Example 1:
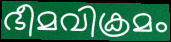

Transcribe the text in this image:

ഭീമവിക്രമം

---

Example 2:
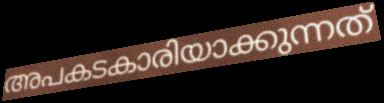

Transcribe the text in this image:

അപകടകാരിയാക്കുന്നത്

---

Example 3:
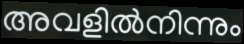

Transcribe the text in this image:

അവളിൽനിന്നും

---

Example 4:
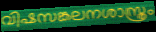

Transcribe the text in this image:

വിഷസങ്കലനശാസ്ത്രം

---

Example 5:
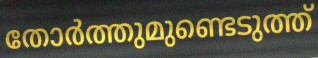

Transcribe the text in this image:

തോർത്തുമുണ്ടെടുത്ത്